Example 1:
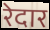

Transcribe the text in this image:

रेदार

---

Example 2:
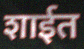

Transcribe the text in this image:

शाईत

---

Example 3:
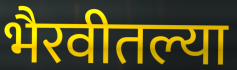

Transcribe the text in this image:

भैरवीतल्या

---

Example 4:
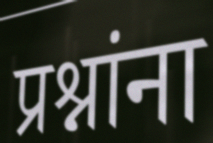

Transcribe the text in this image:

प्रश्नांना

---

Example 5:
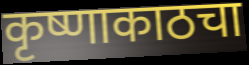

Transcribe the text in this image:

कृष्णाकाठचा